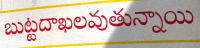
బుట్టదాఖలవుతున్నాయి